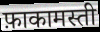
फ़ाकामस्ती